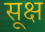
सूक्ष